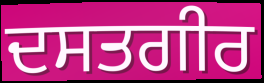
ਦਸਤਗੀਰ